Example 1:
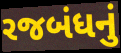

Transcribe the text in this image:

રજબંધનું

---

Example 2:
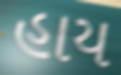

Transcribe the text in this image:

હાય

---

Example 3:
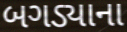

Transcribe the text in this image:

બગડ્યાના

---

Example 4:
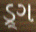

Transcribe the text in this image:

ડ્ર્ગ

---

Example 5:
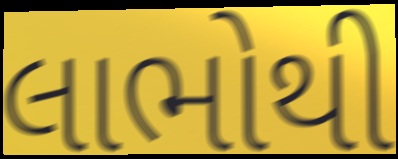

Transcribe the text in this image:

લાભોથી